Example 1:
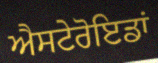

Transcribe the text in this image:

ਐਸਟੇਰੋਇਡਾਂ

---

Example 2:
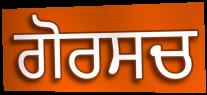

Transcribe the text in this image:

ਗੋਰਸਚ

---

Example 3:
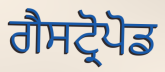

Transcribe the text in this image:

ਗੈਸਟ੍ਰੋਪੋਡ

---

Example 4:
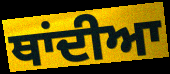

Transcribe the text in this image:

ਥਾਂਦੀਆ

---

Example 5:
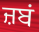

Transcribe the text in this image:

ਜ਼ਬਂ